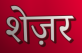
शेज़र